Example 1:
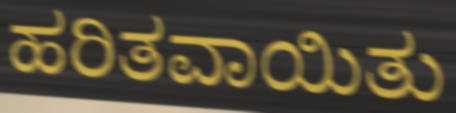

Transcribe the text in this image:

ಹರಿತವಾಯಿತು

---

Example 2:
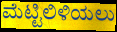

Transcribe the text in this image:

ಮೆಟ್ಟಿಲಿಳಿಯಲು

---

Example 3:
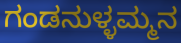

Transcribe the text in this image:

ಗಂಡನುಳ್ಳಮ್ಮನ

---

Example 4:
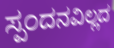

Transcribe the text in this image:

ಸ್ಪಂದನವಿಲ್ಲದ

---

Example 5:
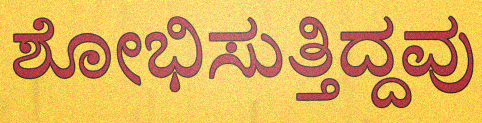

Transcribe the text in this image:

ಶೋಭಿಸುತ್ತಿದ್ದವು